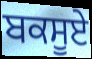
ਬਕਸੂਏ